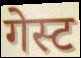
गेस्ट